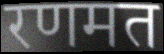
रणमत